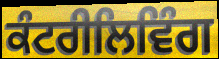
ਕੰਟਰੀਲਿਵਿੰਗ